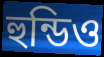
হুন্ডিও